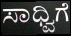
ಸಾಧ್ವಿಗೆ